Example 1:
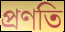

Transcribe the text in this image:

প্রণতি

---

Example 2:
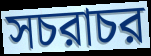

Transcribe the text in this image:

সচরাচর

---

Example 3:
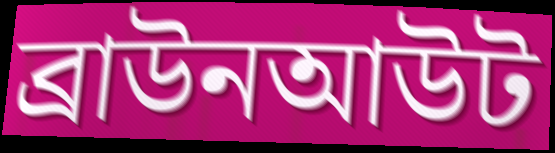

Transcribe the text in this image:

ব্রাউনআউট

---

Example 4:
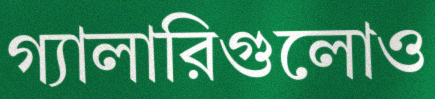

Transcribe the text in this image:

গ্যালারিগুলোও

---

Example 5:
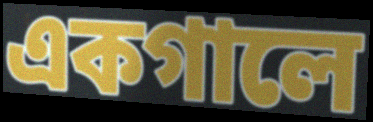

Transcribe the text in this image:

একগালে